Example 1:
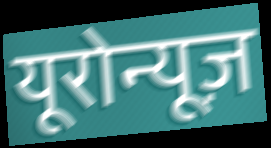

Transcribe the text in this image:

यूरोन्यूज़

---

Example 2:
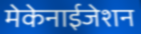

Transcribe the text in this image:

मेकेनाईजेशन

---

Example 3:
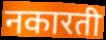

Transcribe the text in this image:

नकारती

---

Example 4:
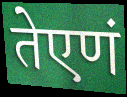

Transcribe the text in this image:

तेएणं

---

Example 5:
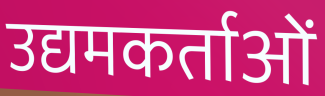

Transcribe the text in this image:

उद्यमकर्ताओं